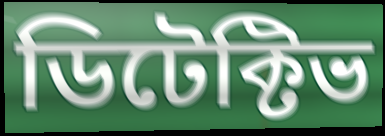
ডিটেক্টিভ